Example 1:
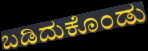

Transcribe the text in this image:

ಬಡಿದುಕೊಂಡು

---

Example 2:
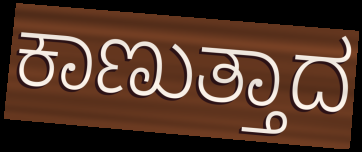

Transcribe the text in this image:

ಕಾಣುತ್ತಾದ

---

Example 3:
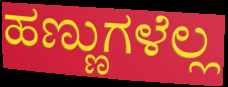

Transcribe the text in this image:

ಹಣ್ಣುಗಳೆಲ್ಲ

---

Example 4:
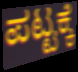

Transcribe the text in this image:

ಪಟ್ಟಕ್ಕೆ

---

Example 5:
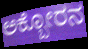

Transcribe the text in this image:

ಅಕ್ಬೋರನ